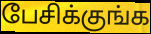
பேசிக்குங்க